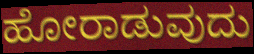
ಹೋರಾಡುವುದು